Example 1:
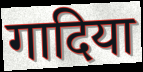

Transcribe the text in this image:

गादिया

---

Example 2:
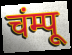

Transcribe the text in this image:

चंम्पू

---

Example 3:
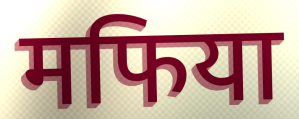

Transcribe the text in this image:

मफिया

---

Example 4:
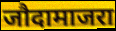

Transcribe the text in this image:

जौदामाजरा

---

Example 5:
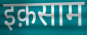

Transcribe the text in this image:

इक़साम